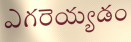
ఎగరెయ్యడం